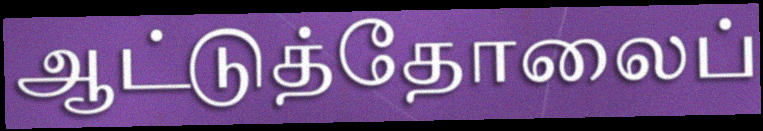
ஆட்டுத்தோலைப்